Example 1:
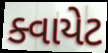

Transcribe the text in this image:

ક્વાયેટ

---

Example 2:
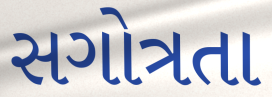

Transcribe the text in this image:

સગોત્રતા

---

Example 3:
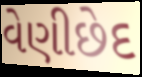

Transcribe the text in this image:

વેણીછેદ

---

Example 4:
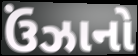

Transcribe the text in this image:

ઉંઝાનો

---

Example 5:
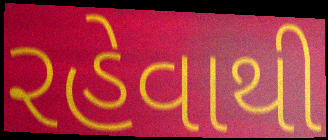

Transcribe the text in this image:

રહેવાથી